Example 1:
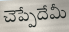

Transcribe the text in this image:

చెప్పేదేమీ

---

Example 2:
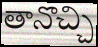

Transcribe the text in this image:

తానొచ్చి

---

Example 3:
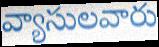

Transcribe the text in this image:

వ్యాసులవారు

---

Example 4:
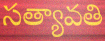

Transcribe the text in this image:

సత్యావతి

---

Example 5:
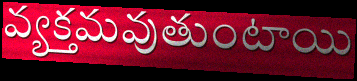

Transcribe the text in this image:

వ్యక్తమవుతుంటాయి